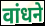
वांधने